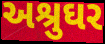
અશ્રુઘર